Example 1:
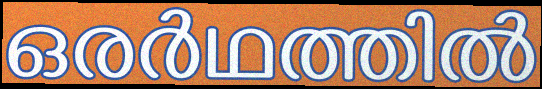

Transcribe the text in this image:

ഒരർഥത്തിൽ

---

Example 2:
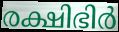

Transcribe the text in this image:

രക്ഷിഭിർ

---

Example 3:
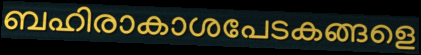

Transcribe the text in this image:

ബഹിരാകാശപേടകങ്ങളെ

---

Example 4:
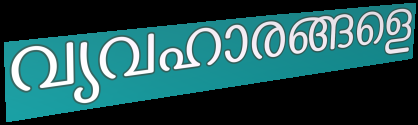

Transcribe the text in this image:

വ്യവഹാരങ്ങളെ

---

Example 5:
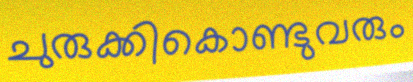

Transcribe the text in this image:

ചുരുക്കികൊണ്ടുവരും